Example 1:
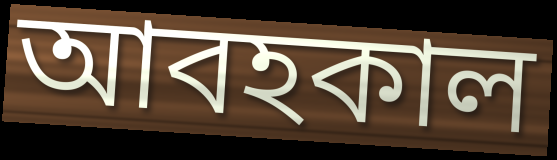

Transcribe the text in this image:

আবহকাল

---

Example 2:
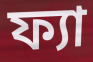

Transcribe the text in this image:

ফ্যা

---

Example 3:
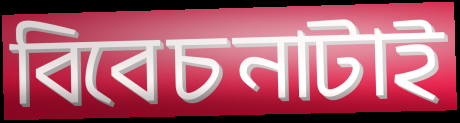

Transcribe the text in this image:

বিবেচনাটাই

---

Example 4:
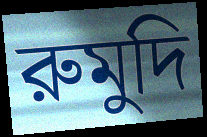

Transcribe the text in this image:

রুমুদি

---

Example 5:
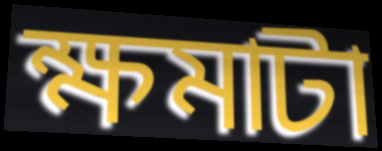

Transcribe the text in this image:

ক্ষমাটা